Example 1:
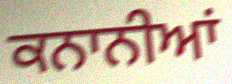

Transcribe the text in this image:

ਕਨਾਨੀਆਂ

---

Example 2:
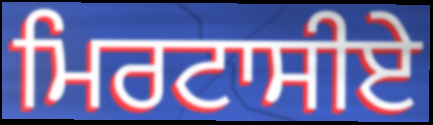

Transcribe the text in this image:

ਮਿਰਟਾਸੀਏ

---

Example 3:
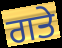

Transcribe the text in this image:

ਗਤੇ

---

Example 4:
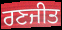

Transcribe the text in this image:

ਰਣਜੀਤ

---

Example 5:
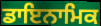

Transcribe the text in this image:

ਡਾਇਨਾਮਿਕ